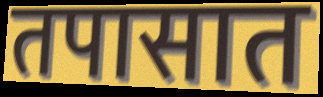
तपासात